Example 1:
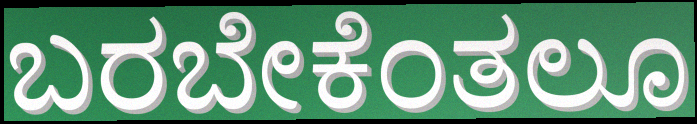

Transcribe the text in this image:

ಬರಬೇಕೆಂತಲೂ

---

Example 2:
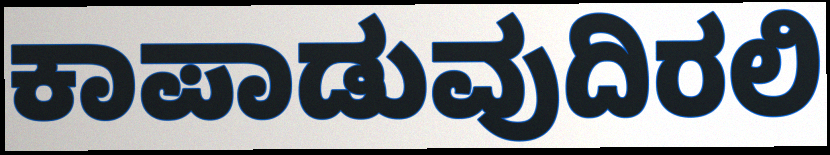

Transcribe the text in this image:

ಕಾಪಾಡುವುದಿರಲಿ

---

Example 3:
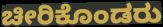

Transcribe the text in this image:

ಚೀರಿಕೊಂಡರು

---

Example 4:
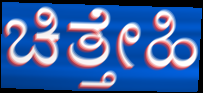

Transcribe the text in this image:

ಚಿತ್ತೇಹಿ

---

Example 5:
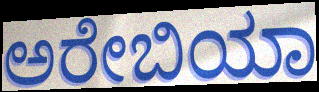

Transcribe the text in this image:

ಅರೇಬಿಯಾ